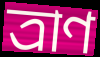
ত্ৰাণ